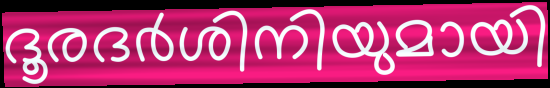
ദൂരദർശിനിയുമായി